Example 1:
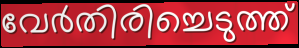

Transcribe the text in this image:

വേർതിരിച്ചെടുത്ത്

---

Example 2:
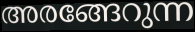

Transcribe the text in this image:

അരങ്ങേറുന്ന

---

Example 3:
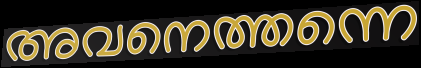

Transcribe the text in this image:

അവനെത്തന്നെ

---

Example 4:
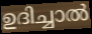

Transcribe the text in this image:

ഉദിച്ചാൽ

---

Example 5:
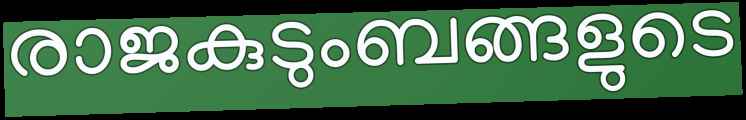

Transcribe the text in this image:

രാജകുടുംബങ്ങളുടെ